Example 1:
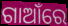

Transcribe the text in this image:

ଗାଆଁରେ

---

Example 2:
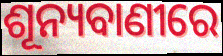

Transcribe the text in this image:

ଶୂନ୍ୟବାଣୀରେ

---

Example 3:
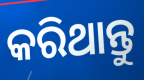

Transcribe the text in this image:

କରିଥାନ୍ତୁ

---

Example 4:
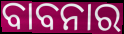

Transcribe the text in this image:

ବାବନାର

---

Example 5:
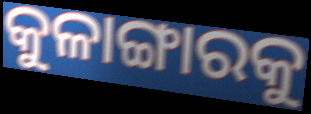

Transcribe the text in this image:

କୁଳାଙ୍ଗାରକୁ